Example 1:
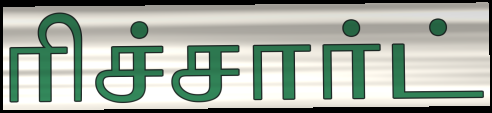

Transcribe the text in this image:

ரிச்சார்ட்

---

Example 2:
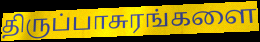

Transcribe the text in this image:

திருப்பாசுரங்களை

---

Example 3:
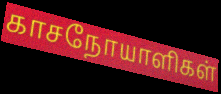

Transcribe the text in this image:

காசநோயாளிகள்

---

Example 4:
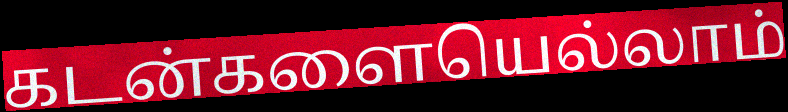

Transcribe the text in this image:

கடன்களையெல்லாம்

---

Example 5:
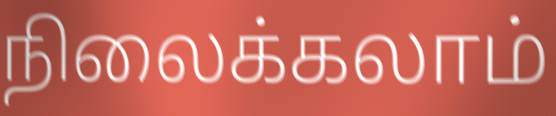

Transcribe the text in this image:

நிலைக்கலாம்